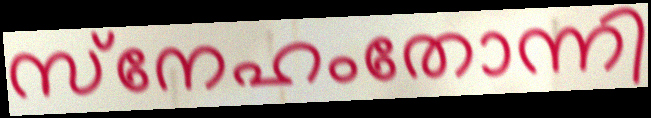
സ്‌നേഹംതോന്നി